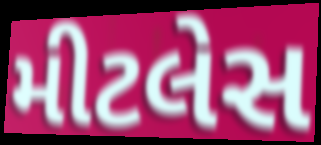
મીટલેસ